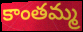
కాంతమ్మ